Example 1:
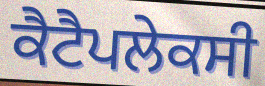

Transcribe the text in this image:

ਕੈਟੈਪਲੇਕਸੀ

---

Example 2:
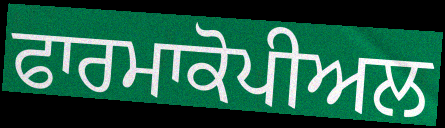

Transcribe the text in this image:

ਫਾਰਮਾਕੋਪੀਅਲ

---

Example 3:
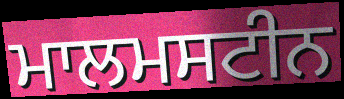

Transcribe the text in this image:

ਮਾਲਮਸਟੀਨ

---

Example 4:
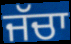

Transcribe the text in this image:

ਜੱਚਾ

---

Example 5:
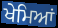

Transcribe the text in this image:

ਖੇਮਿਆਂ